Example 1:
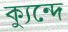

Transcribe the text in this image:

ক্যুন্দে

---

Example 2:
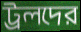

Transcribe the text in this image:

ট্রলদের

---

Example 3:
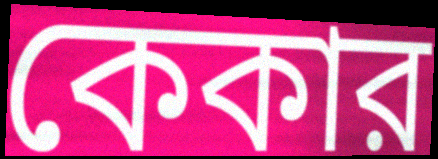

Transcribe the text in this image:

কেকার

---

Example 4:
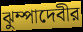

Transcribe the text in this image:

ঝুম্পাদেবীর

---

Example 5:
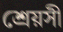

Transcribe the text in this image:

শ্রেয়সী